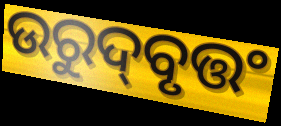
ଉରୁଦ୍‌ବୃତ୍ତଂ